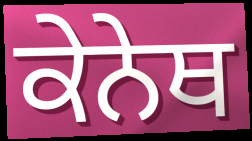
ਕੇਨੇਥ